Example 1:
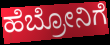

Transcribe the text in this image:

ಹೆಬ್ರೋನಿಗೆ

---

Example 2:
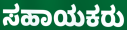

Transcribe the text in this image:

ಸಹಾಯಕರು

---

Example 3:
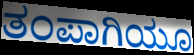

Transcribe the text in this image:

ತಂಪಾಗಿಯೂ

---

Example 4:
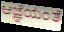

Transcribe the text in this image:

ಆಜ್ಞೆಯಂತೆ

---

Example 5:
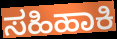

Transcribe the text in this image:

ಸಹಿಹಾಕಿ